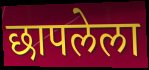
छापलेला